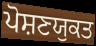
ਪੋਸ਼ਣਯੁਕਤ